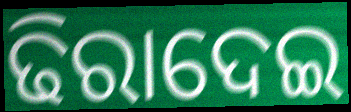
ଢିରାଦେଇ